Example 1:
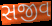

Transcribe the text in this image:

સજીવ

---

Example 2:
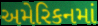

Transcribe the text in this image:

અમેરિકનમાં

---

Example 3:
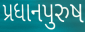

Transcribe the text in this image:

પ્રધાનપુરુષ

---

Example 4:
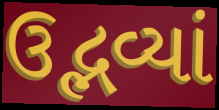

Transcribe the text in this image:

ઉદ્ભવ્યાં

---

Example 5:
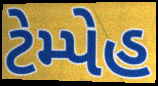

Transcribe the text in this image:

ટેમ્પેહ